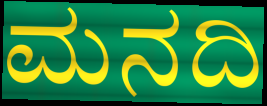
ಮನದಿ